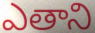
ఎతాని